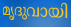
മൃദുവായി